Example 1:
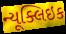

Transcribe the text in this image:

ન્યૂક્લિઇક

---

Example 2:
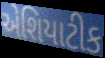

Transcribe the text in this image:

એશિયાટીક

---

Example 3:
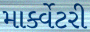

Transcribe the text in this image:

માર્ક્વેટરી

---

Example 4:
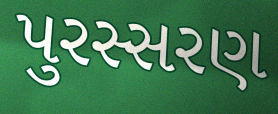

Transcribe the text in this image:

પુરસ્સરણ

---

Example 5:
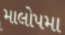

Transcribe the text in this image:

માલોપમા